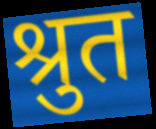
श्रुत